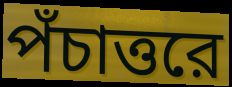
পঁচাত্তরে